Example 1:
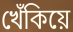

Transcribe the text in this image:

খেঁকিয়ে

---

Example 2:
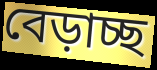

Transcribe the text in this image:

বেড়াচ্ছ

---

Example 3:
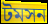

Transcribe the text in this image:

টমসন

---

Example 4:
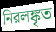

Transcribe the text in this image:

নিরলঙ্কৃত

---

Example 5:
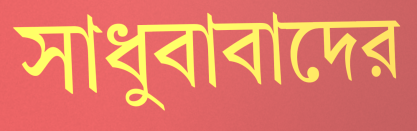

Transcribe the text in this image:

সাধুবাবাদের